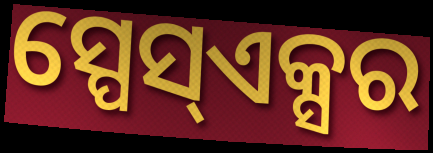
ସ୍ପେସ୍ଏକ୍ସର